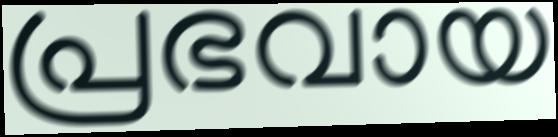
പ്രഭവായ